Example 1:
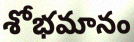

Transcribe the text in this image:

శోభమానం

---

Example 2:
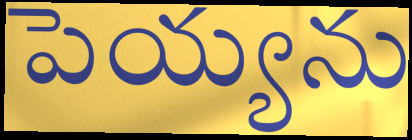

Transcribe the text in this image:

పెయ్యను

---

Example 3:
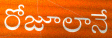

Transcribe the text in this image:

రోజూలానే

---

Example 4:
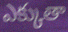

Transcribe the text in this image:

ఎక్కుతా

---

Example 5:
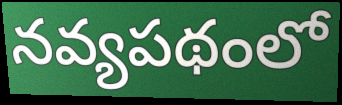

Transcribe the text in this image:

నవ్యపథంలో